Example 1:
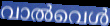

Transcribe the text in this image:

വാൽവെൾ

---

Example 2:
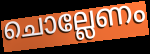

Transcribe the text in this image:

ചൊല്ലേണം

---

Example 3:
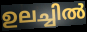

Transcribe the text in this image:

ഉലച്ചിൽ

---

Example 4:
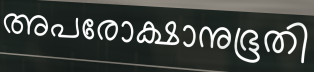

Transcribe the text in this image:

അപരോക്ഷാനുഭൂതി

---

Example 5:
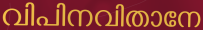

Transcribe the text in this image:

വിപിനവിതാനേ